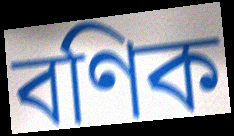
বণিক